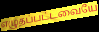
எழுதப்பட்டவையே